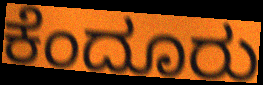
ಕೆಂದೂರು